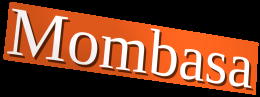
Mombasa